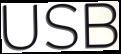
USB